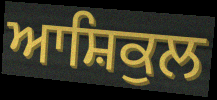
ਆਸ਼ਿਕੁਲ